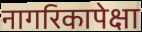
नागरिकापेक्षा